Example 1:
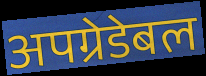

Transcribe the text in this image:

अपग्रेडेबल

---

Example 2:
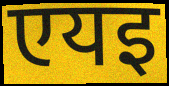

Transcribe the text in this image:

एयइ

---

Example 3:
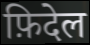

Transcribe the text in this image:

फ़िदेल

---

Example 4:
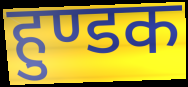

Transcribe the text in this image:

हुण्डक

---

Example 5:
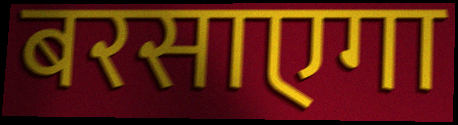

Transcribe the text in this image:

बरसाएगा